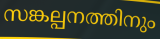
സങ്കല്പനത്തിനും